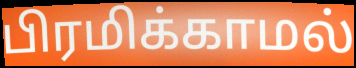
பிரமிக்காமல்